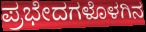
ಪ್ರಭೇದಗಳೊಳಗಿನ